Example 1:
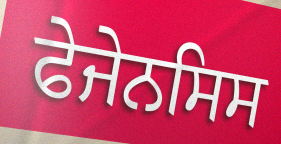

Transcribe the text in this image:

ਫੇਜੇਨਸਿਸ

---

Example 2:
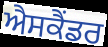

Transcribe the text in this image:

ਐਸਕੈਂਡਰ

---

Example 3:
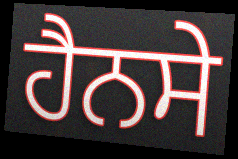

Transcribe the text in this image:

ਹੈਨਸੇ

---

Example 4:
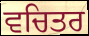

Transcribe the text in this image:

ਵਚਿਤਰ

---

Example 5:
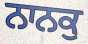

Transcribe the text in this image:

ਨਾਨਕੁ